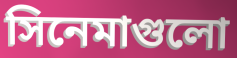
সিনেমাগুলো